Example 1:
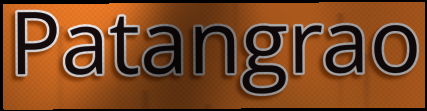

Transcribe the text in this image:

Patangrao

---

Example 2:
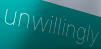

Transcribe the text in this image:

unwillingly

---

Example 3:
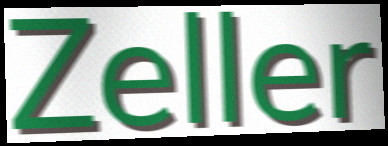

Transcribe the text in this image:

Zeller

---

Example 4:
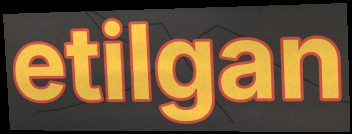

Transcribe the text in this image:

etilgan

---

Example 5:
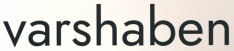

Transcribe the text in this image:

varshaben